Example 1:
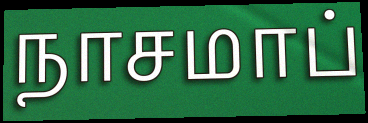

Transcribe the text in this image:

நாசமாப்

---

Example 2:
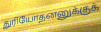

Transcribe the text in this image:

துரியோதனனுக்குக்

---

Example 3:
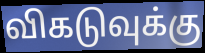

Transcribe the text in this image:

விகடுவுக்கு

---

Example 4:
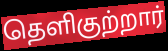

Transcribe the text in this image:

தெளிகுற்றார்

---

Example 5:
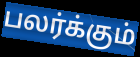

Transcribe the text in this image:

பலர்க்கும்